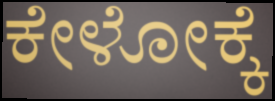
ಕೇಳೋಕ್ಕೆ